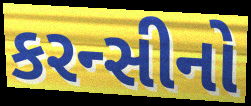
કરન્સીનો